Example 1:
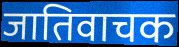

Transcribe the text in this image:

जातिवाचक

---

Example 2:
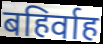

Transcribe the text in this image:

बहिर्वाह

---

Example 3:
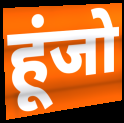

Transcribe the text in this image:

हूंजो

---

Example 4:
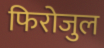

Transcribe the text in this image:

फिरोजुल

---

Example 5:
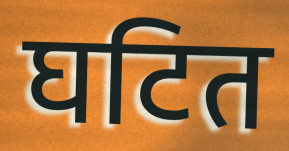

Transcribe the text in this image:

घटित